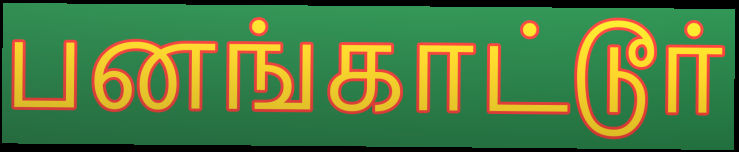
பனங்காட்டூர்